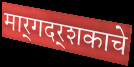
मार्गदर्शकाचे